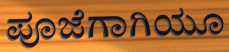
ಪೂಜೆಗಾಗಿಯೂ